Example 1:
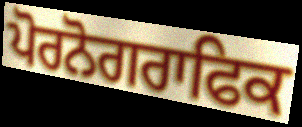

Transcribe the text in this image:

ਪੋਰਨੋਗਰਾਫਿਕ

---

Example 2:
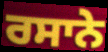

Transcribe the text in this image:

ਰਸਾਨੇ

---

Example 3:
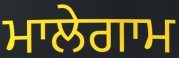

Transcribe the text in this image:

ਮਾਲੇਗਾਮ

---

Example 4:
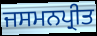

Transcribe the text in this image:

ਜਸਮਨਪ੍ਰੀਤ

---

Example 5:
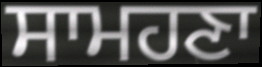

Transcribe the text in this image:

ਸਾਮਹਣਾ